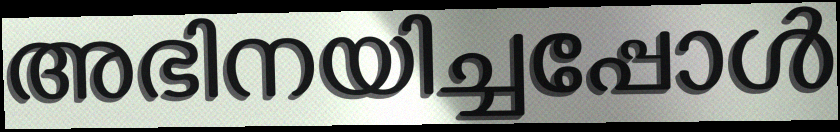
അഭിനയിച്ചപ്പോൾ